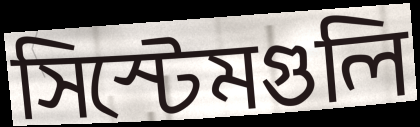
সিস্টেমগুলি